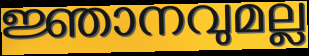
ജ്ഞാനവുമല്ല